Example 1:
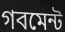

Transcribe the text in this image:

গবমেন্ট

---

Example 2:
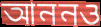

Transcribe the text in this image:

আননও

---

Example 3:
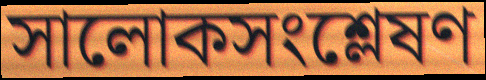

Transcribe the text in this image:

সালোকসংশ্লেষণ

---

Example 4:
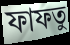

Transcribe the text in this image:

ফাফতু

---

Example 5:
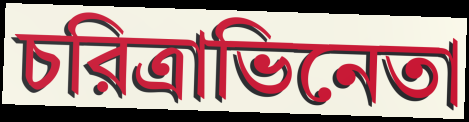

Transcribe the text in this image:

চরিত্রাভিনেতা